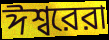
ঈশ্বরেরা